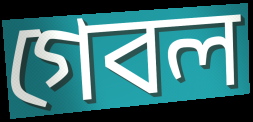
গেবল